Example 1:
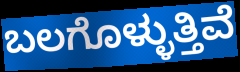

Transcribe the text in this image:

ಬಲಗೊಳ್ಳುತ್ತಿವೆ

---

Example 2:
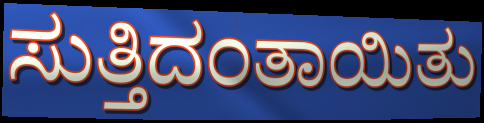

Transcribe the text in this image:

ಸುತ್ತಿದಂತಾಯಿತು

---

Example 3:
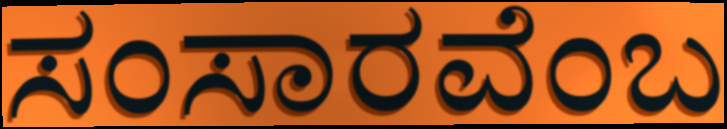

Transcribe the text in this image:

ಸಂಸಾರವೆಂಬ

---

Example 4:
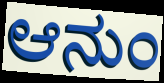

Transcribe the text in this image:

ಆನುಂ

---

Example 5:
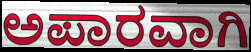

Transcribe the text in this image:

ಅಪಾರವಾಗಿ